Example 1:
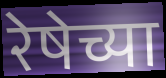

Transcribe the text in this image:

रेषेच्या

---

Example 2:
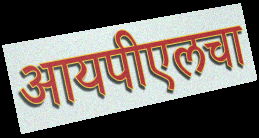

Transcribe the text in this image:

आयपीएलचा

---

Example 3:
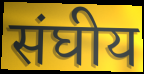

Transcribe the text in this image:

संघीय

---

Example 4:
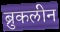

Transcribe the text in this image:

ब्रुकलीन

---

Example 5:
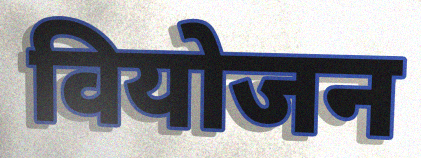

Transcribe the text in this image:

वियोजन